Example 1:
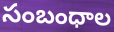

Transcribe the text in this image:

సంబంధాల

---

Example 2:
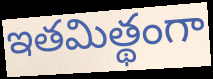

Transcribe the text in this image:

ఇతమిత్థంగా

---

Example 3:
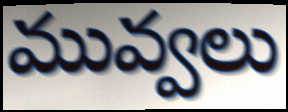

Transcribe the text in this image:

మువ్వలు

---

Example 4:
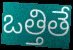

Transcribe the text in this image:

ఒత్తితే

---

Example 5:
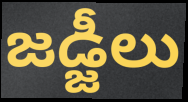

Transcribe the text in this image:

జడ్జీలు